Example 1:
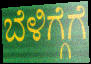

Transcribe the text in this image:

ಬೆಳಿಗ್ಗೆಗೆ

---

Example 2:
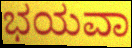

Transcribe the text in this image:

ಭಯವಾ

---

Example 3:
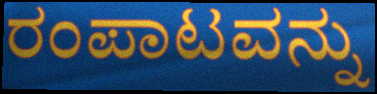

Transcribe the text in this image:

ರಂಪಾಟವನ್ನು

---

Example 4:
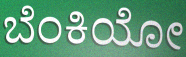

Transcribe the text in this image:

ಬೆಂಕಿಯೋ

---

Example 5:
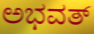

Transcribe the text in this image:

ಅಭವತ್